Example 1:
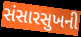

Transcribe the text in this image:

સંસારસુખની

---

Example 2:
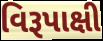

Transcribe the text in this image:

વિરૂપાક્ષી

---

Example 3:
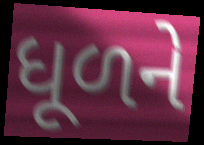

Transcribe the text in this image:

ધૂળને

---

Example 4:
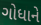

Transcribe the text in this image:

ગોધાને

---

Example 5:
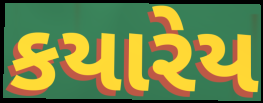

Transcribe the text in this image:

કયારેય